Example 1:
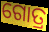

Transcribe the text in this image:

ଗୋତ୍ର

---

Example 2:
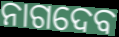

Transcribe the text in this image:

ନାଗଦେବ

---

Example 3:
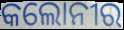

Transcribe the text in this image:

କଲୋନୀର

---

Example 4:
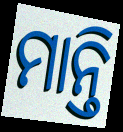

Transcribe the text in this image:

ମାନ୍ତି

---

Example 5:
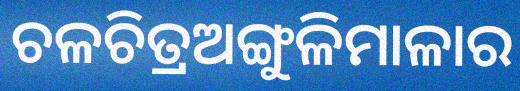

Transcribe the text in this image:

ଚଳଚିତ୍ରଅଙ୍ଗୁଳିମାଳାର